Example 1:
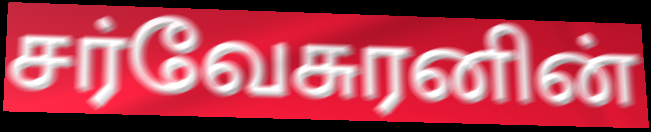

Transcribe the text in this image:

சர்வேசுரனின்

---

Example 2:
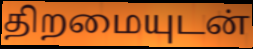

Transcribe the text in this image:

திறமையுடன்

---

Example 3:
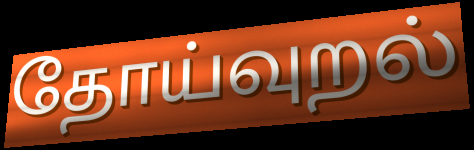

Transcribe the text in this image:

தோய்வுறல்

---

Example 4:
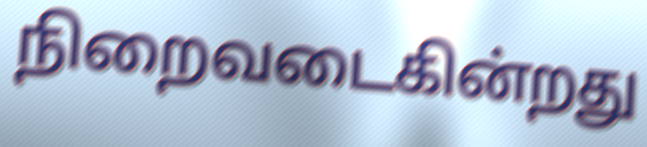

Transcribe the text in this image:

நிறைவடைகின்றது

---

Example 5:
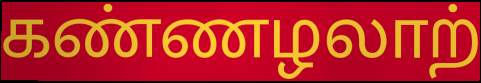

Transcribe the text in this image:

கண்ணழலாற்